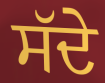
ਸੱਦੇ